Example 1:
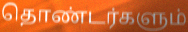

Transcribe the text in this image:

தொண்டர்களும்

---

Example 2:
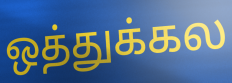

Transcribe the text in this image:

ஒத்துக்கல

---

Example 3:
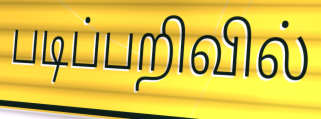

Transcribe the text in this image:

படிப்பறிவில்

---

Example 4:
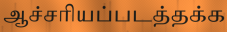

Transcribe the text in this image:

ஆச்சரியப்படத்தக்க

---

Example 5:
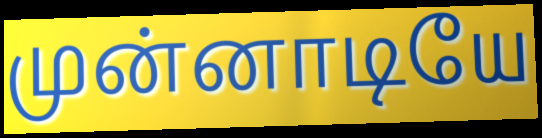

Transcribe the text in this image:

முன்னாடியே